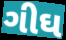
ગીઘ